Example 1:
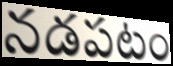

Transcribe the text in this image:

నడపటం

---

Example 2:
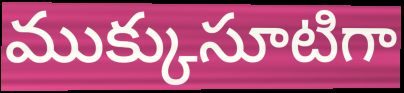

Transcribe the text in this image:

ముక్కుసూటిగా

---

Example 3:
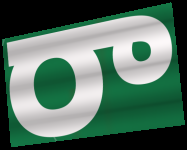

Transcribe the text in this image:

రా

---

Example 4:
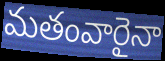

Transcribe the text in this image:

మతంవారైనా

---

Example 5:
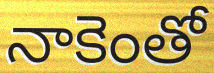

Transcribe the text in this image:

నాకెంతో